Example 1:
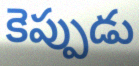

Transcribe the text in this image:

కెప్పుడు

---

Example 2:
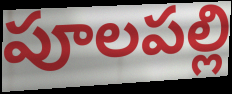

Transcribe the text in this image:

పూలపల్లి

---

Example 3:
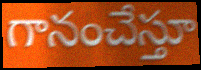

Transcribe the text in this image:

గానంచేస్తూ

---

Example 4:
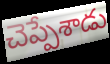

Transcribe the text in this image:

చెప్పేశాడు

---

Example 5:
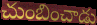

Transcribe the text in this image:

చుంబించాడు